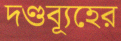
দণ্ডব্যূহের